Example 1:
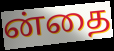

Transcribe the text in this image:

ன்தை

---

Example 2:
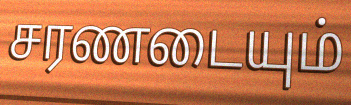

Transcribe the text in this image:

சரணடையும்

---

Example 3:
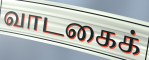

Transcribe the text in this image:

வாடகைக்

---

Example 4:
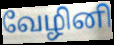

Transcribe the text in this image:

வேழினி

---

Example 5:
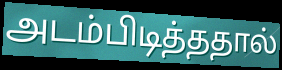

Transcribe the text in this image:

அடம்பிடித்ததால்